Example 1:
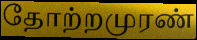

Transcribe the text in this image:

தோற்றமுரண்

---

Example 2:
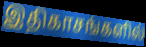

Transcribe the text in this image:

இதிகாசங்களில்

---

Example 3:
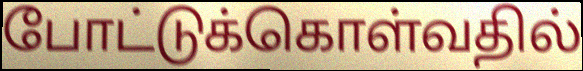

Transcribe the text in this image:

போட்டுக்கொள்வதில்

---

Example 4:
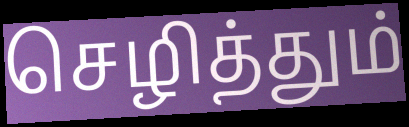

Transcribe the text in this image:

செழித்தும்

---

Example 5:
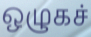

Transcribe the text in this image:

ஒழுகச்